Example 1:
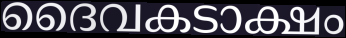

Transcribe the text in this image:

ദൈവകടാക്ഷം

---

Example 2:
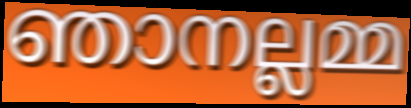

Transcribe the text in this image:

ഞാനല്ലമ്മ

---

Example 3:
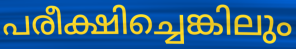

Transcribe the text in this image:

പരീക്ഷിച്ചെങ്കിലും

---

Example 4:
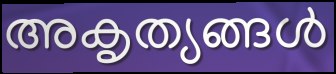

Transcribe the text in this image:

അകൃത്യങ്ങൾ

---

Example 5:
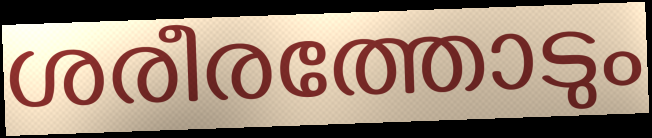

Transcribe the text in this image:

ശരീരത്തോടും